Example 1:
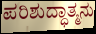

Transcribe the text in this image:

ಪರಿಶುದ್ಧಾತ್ಮನು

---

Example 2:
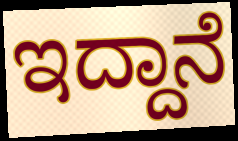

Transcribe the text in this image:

ಇದ್ದಾನೆ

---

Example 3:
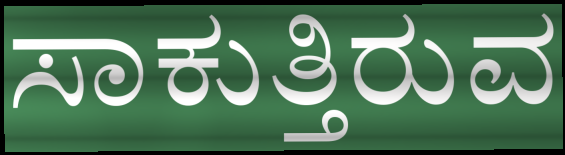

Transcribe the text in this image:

ಸಾಕುತ್ತಿರುವ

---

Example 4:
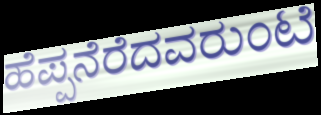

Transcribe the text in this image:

ಹೆಪ್ಪನೆರೆದವರುಂಟೆ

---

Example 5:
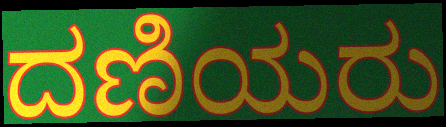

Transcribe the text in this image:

ದಣಿಯರು